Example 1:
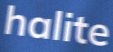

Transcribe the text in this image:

halite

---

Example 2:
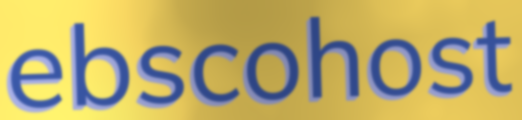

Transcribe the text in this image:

ebscohost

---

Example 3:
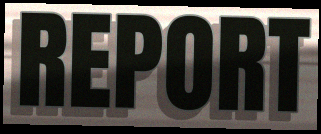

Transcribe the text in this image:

REPORT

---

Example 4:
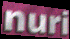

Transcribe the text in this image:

nuri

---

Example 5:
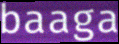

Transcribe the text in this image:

baaga